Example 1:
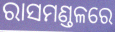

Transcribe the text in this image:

ରାସମଣ୍ଡଳରେ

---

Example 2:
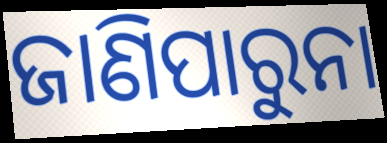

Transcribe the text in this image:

ଜାଣିପାରୁନା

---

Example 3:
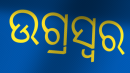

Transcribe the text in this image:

ଉଗ୍ରସ୍ୱର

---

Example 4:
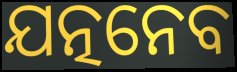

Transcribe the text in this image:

ଯତ୍ନନେବ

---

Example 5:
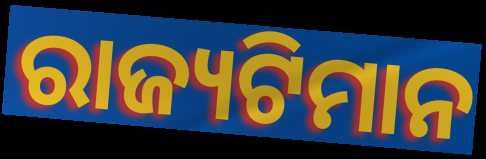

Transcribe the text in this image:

ରାଜ୍ୟଟିମାନ